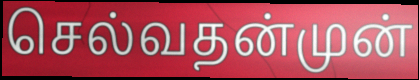
செல்வதன்முன்